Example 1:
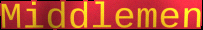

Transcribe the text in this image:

Middlemen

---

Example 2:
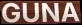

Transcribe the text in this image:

GUNA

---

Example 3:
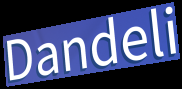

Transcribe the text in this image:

Dandeli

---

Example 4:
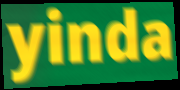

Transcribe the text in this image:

yinda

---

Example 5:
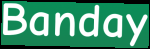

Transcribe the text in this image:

Banday